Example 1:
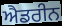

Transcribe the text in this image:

ਐਡਰੀਨ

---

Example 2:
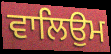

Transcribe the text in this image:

ਵਾਲਿਉਮ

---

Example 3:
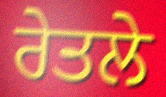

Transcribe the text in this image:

ਰੇਤਲੇ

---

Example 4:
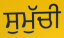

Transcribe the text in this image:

ਸੁਮੁੱਚੀ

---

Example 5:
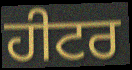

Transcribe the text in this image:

ਹੀਟਰ